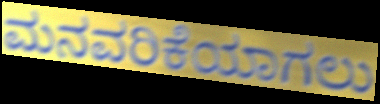
ಮನವರಿಕೆಯಾಗಲು